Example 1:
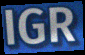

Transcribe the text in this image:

IGR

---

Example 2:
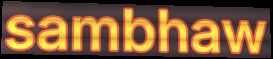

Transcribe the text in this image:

sambhaw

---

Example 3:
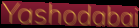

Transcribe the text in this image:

Yashodabai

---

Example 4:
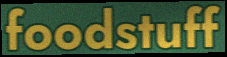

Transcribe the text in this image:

foodstuff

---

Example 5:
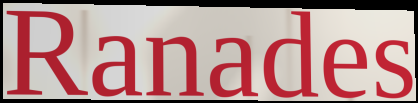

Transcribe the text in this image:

Ranades